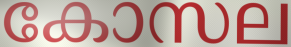
കോസല